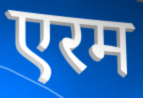
एरम